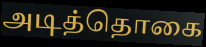
அடித்தொகை